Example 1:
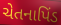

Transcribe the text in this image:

ચેતનાપિંડ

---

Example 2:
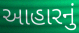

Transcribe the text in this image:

આહારનું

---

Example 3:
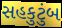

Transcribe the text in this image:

સહકુટુંબ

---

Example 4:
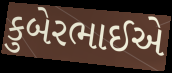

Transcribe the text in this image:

કુબેરભાઈએ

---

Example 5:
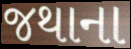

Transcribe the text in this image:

જથાના